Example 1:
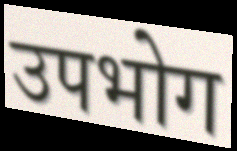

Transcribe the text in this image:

उपभोग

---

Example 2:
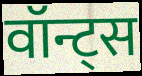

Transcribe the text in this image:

वॉन्ट्स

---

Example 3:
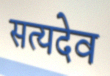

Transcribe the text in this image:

सत्‍यदेव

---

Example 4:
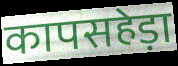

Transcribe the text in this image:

कापसहेड़ा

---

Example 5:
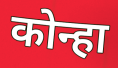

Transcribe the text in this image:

कोन्हा